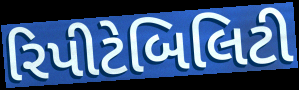
રિપીટેબિલિટી